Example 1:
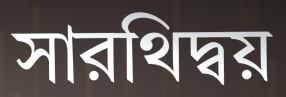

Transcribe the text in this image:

সারথিদ্বয়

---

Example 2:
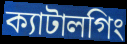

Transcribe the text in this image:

ক্যাটালগিং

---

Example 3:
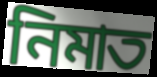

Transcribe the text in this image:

নিমাত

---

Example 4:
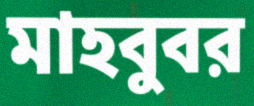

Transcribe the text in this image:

মাহবুবর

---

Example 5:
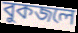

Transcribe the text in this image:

বুকজলে